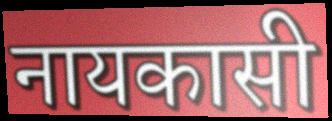
नायकासी